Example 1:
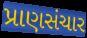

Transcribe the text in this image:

પ્રાણસંચાર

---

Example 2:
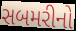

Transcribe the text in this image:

સબમરીનો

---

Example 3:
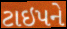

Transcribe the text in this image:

ટાઇપને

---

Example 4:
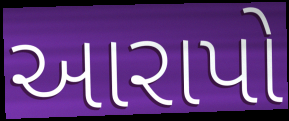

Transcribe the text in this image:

આરાપો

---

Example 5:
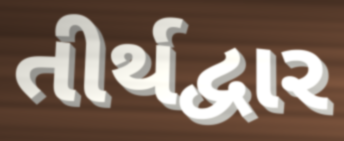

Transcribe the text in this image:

તીર્થદ્વાર